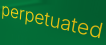
perpetuated